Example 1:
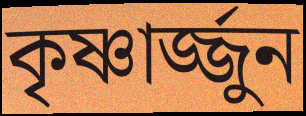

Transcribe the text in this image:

কৃষ্ণার্জ্জুন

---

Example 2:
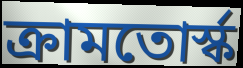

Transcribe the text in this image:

ক্রামতোর্স্ক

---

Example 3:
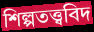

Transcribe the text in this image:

শিল্পতত্ত্ববিদ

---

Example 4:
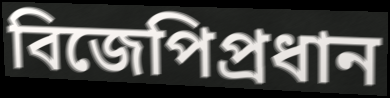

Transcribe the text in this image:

বিজেপিপ্রধান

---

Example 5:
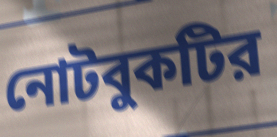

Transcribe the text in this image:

নোটবুকটির